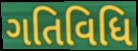
ગતિવિધિ